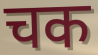
चक